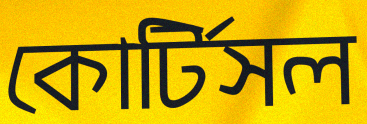
কোর্টিসল